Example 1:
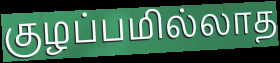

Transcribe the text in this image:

குழப்பமில்லாத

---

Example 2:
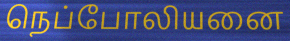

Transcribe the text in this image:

நெப்போலியனை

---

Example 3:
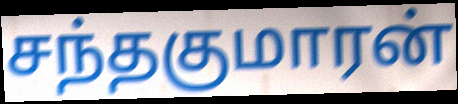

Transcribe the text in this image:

சந்தகுமாரன்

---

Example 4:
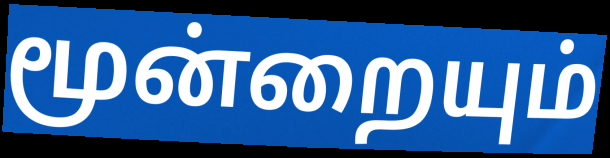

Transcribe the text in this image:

மூன்றையும்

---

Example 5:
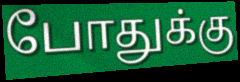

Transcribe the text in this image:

போதுக்கு